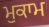
ਮੁਕਾਮ